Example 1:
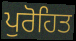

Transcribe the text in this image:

ਪੁਰੋਹਿਤ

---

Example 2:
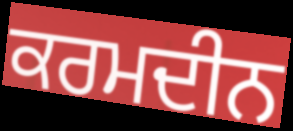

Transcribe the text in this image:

ਕਰਮਦੀਨ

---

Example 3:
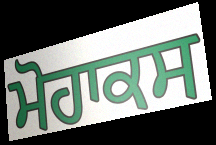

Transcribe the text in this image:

ਮੋਹਾਕਸ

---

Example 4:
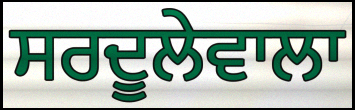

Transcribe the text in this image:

ਸਰਦੂਲੇਵਾਲਾ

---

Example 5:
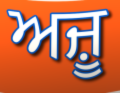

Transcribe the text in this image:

ਅਜ਼ੂ